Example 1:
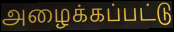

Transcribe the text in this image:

அழைக்கப்பட்டு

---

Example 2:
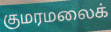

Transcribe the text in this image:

குமரமலைக்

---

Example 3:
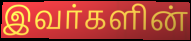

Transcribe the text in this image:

இவர்களின்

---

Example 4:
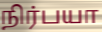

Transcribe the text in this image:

நிர்பயா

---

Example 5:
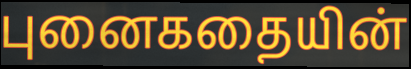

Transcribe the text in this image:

புனைகதையின்